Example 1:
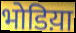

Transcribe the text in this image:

भोडिय़ा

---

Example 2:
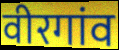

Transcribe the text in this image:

वीरगांव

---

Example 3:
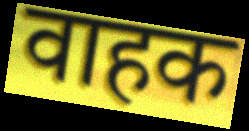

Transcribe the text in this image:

वाहक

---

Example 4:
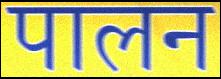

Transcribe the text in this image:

पालन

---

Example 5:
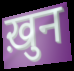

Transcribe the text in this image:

ख़ुन